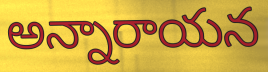
అన్నారాయన